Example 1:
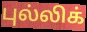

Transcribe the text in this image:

புல்லிக்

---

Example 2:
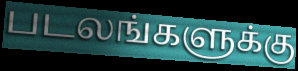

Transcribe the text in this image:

படலங்களுக்கு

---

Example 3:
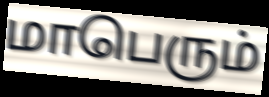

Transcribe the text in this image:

மாபெரும்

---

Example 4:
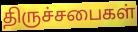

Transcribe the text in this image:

திருச்சபைகள்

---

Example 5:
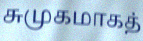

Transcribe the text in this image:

சுமுகமாகத்